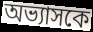
অভ্যাসকে